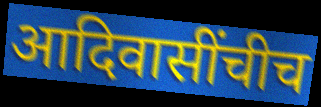
आदिवासींचीच